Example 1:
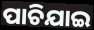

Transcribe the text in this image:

ପାଚିଯାଇ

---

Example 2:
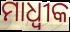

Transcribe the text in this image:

ମାଧ୍ୱୀକ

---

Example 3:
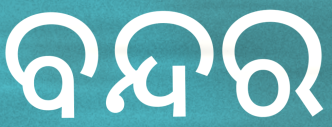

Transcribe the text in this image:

ବନ୍ଦର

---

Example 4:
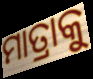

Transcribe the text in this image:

ମାତ୍ରାକୁ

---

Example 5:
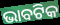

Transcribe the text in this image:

ଭାବଟିକ